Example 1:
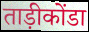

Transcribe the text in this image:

ताड़ीकोंडा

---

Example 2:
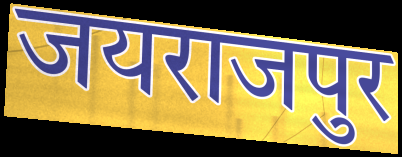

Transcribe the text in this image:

जयराजपुर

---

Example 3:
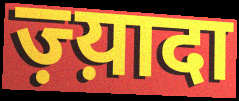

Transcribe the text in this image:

ज़्य़ादा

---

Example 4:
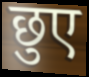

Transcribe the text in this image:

छुए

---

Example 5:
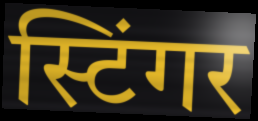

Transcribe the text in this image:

स्टिंगर